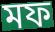
মফ